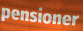
pensioner